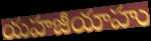
యహజీయాహు